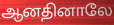
ஆனதினாலே